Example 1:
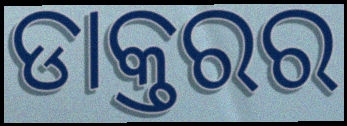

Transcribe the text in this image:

ଡାକ୍ତରର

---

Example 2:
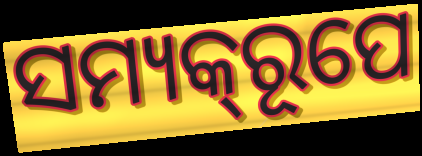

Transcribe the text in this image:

ସମ୍ୟକ୍‌ରୂପେ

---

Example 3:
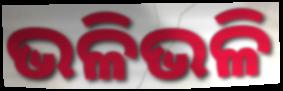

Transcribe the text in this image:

ଭଳିଭଳି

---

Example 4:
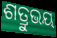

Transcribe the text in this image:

ଶତ୍ରୁଭୟ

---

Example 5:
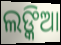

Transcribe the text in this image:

ଲଙ୍କିଆ